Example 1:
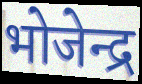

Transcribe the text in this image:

भोजेन्द्र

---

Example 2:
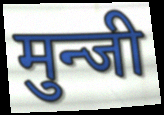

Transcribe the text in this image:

मुन्जी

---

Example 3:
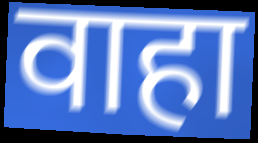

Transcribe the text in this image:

वाहा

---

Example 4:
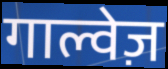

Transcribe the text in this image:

गाल्वेज़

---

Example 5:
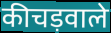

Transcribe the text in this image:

कीचड़वाले